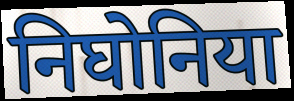
निघोनिया